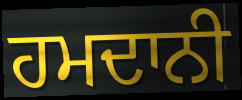
ਹਮਦਾਨੀ